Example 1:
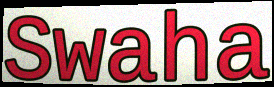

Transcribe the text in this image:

Swaha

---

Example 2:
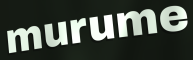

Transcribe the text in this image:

murume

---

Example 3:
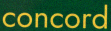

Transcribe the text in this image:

concord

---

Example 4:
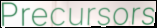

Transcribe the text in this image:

Precursors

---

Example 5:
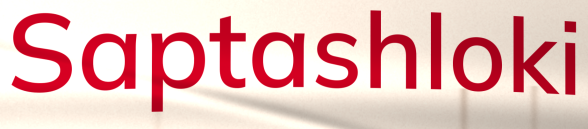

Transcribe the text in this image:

Saptashloki